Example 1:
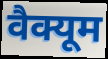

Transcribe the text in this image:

वैक्यूम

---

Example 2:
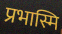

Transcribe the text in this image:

प्रभास्मि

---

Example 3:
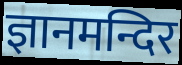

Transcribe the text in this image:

ज्ञानमन्दिर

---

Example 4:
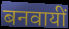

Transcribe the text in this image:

बनवायीं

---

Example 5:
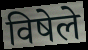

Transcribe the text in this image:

विषेले